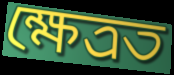
ক্ষেত্ৰত